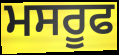
ਮਸਰੂਫ